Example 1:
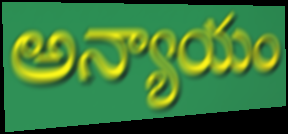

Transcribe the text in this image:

అన్యాయం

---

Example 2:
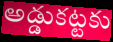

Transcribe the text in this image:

అడ్డుకట్టకు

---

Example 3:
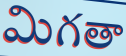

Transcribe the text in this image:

మిగతా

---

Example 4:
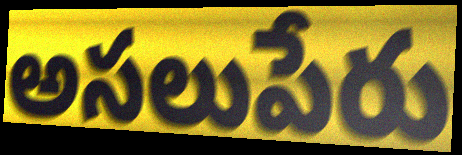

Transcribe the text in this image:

అసలుపేరు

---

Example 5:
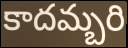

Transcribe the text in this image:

కాదమ్బరి